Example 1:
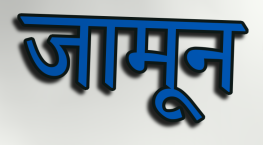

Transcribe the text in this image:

जामून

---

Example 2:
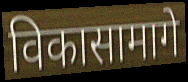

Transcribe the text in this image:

विकासामागे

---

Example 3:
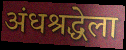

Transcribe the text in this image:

अंधश्रद्धेला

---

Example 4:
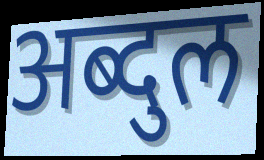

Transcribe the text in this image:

अब्दुल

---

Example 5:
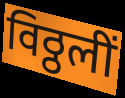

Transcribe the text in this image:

विठ्ठलीं